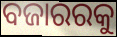
ବଜାରରକୁ